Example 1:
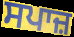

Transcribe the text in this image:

ਸਪਾਜ਼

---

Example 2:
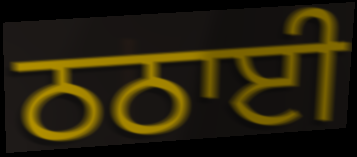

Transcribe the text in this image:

ਠਠਾਈ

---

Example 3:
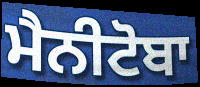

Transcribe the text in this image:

ਮੈਨੀਟੋਬਾ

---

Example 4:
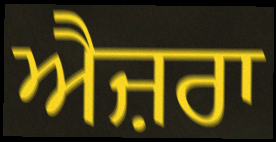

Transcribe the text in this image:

ਐਜ਼ਰਾ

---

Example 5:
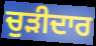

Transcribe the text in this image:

ਚੁੜੀਦਾਰ